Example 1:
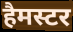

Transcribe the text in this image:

हैमस्टर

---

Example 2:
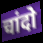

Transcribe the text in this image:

चांदो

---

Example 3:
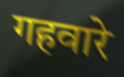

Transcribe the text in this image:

गहवारे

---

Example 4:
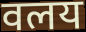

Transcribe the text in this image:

वलय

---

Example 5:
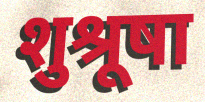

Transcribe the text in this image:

शुश्रूषा